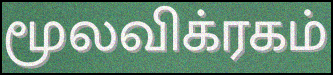
மூலவிக்ரகம்